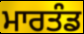
ਮਾਰਤੰਡ